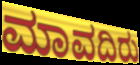
ಮಾವದಿರು